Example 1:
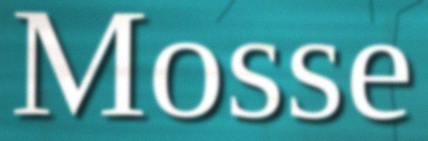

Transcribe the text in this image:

Mosse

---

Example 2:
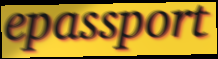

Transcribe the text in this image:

epassport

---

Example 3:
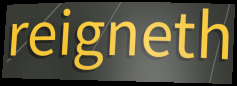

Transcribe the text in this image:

reigneth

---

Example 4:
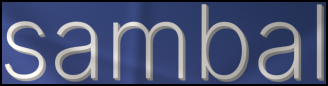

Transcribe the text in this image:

sambal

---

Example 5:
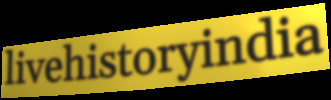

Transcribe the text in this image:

livehistoryindia